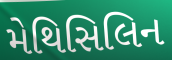
મેથિસિલિન